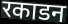
रकाडन